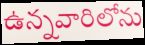
ఉన్నవారిలోను